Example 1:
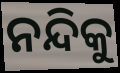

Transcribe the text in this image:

ନନ୍ଦିକୁ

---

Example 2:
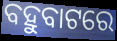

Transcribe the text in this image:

ବହୁବାଟରେ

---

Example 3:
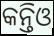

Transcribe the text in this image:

କନ୍ତିଓ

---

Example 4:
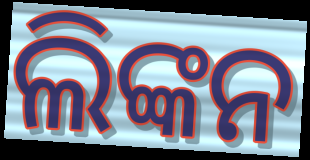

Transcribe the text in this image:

ଲିଙ୍କନ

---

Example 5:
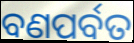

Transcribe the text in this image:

ବଣପର୍ବତ